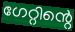
ഗേറ്റിന്റെ